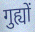
गुह्यों